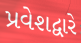
પ્રવેશદ્વારે